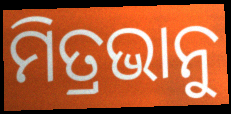
ମିତ୍ରଭାନୁ